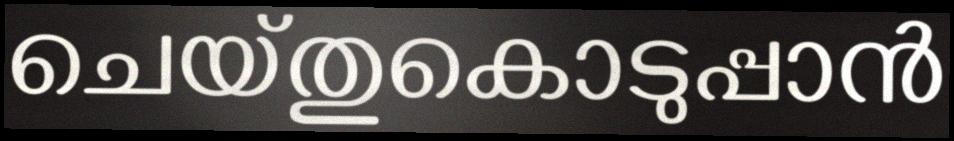
ചെയ്തുകൊടുപ്പാൻ